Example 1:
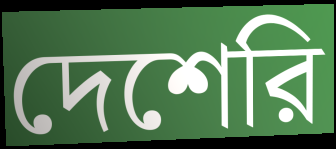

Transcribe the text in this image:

দেশেরি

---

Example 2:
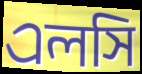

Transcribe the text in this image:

এলসি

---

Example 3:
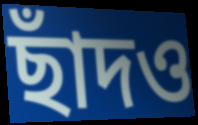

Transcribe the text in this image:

ছাঁদও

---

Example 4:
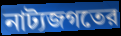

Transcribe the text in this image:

নাট্যজগতের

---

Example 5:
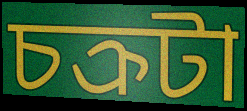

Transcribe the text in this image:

চক্রটা